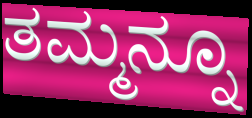
ತಮ್ಮನ್ನೂ